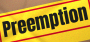
Preemption